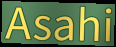
Asahi